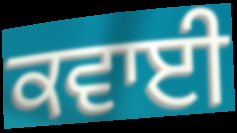
ਕਵਾਈ